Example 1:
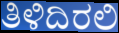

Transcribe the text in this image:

ತಿಳಿದಿರಲಿ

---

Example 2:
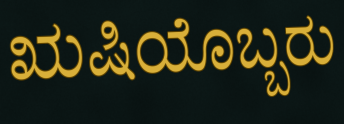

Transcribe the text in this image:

ಋಷಿಯೊಬ್ಬರು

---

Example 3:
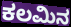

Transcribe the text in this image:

ಕಲಮಿನ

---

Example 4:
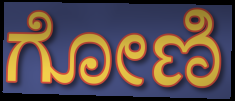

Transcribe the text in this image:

ಗೋಣಿ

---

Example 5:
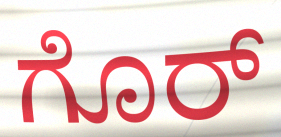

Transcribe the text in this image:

ಗೊರ್